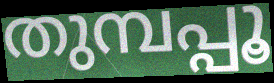
തുമ്പപ്പൂ